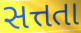
સત્તતા